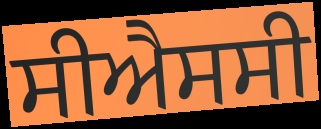
ਸੀਐਸਸੀ